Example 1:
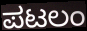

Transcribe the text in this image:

ಪಟಲಂ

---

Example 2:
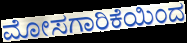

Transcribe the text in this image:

ಮೋಸಗಾರಿಕೆಯಿಂದ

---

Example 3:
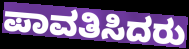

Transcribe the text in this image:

ಪಾವತಿಸಿದರು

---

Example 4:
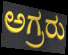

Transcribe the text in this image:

ಅಗ್ರರು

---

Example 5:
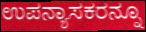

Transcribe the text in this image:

ಉಪನ್ಯಾಸಕರನ್ನೂ